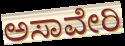
ಅಸಾವೇರಿ